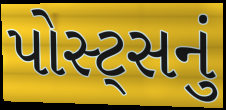
પોસ્ટ્સનું